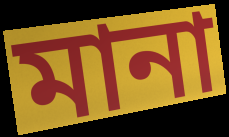
মানা